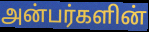
அன்பர்களின்